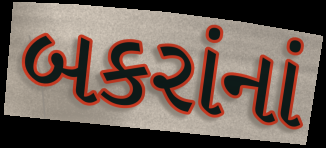
બકરાંનાં